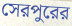
সেরপুরের